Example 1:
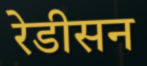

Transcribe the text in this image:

रेडीसन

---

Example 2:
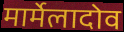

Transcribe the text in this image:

मार्मेलादोव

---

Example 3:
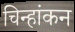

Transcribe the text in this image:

चिन्हांकन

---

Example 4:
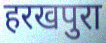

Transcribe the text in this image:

हरखपुरा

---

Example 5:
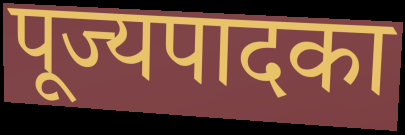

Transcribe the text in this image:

पूज्यपादका